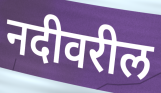
नदीवरील